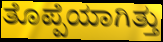
ತೊಪ್ಪೆಯಾಗಿತ್ತು